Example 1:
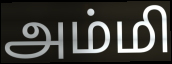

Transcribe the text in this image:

அம்மி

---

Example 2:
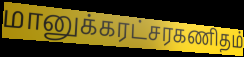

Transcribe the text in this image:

மானுக்கரட்சரகணிதம்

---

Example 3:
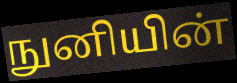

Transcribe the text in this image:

நுனியின்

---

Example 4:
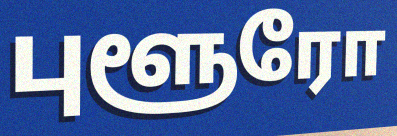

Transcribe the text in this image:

புளூரோ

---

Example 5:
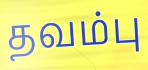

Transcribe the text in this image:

தவம்பு